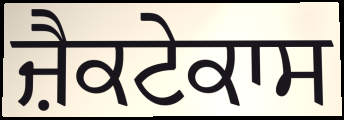
ਜ਼ੈਕਟੇਕਾਸ